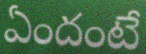
ఏందంటే